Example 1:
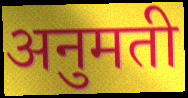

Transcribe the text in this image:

अनुमती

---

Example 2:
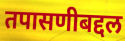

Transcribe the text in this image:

तपासणीबद्दल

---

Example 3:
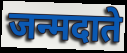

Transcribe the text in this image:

जन्मदाते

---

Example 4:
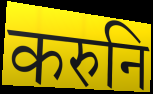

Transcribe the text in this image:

करुनि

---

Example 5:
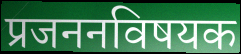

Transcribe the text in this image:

प्रजननविषयक